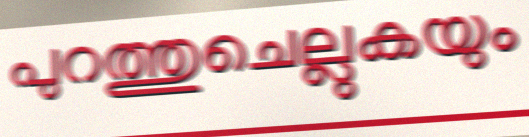
പുറത്തുചെല്ലുകയും